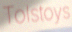
Tolstoys